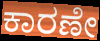
ಕಾರಣೇ